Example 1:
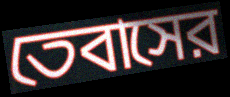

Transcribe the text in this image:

তেবাসের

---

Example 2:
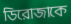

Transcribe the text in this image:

ডিরোজাকে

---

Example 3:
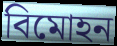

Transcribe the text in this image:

বিমোহন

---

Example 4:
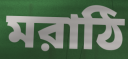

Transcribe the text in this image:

মরাঠি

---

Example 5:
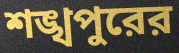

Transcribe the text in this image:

শঙ্খপুরের